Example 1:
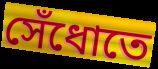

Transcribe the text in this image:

সেঁধোতে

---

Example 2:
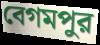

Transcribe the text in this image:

বেগমপুর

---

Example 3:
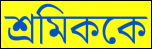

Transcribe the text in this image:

শ্রমিককে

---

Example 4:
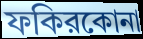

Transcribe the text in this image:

ফকিরকোনা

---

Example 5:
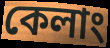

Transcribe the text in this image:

কেলাং